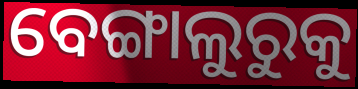
ବେଙ୍ଗାଲୁରୁକୁ